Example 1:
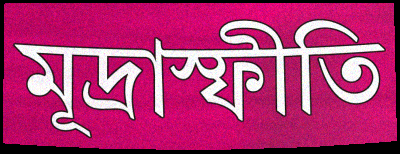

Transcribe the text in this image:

মূদ্রাস্ফীতি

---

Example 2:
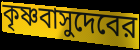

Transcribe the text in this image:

কৃষ্ণবাসুদেবের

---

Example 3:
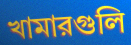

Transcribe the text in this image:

খামারগুলি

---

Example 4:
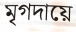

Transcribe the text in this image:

মৃগদায়ে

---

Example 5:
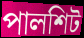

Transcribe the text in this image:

পালশিট